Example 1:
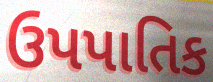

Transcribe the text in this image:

ઉપપાતિક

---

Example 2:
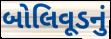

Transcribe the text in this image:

બોલિવૂડનું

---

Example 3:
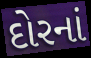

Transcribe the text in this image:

દોરનાં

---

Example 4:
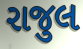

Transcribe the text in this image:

રાજુલ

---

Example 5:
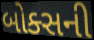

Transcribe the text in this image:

બોક્સની